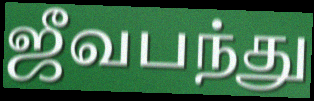
ஜீவபந்து